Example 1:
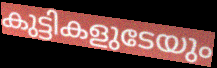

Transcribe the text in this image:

കുട്ടികളുടേയും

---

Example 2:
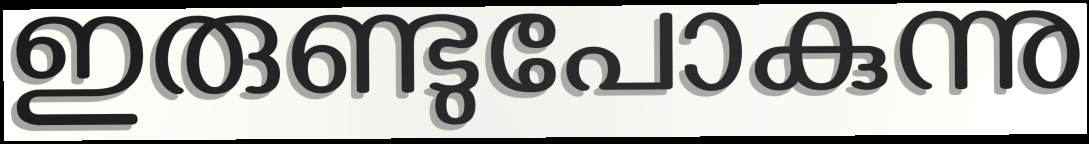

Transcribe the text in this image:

ഇരുണ്ടുപോകുന്നു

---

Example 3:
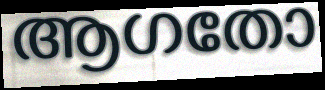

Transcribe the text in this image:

ആഗതോ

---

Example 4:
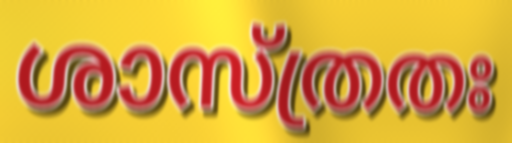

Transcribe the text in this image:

ശാസ്ത്രതഃ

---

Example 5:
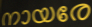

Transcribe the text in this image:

നായരേ